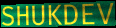
SHUKDEV